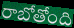
రాబోతోంది